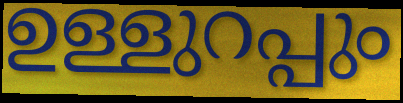
ഉള്ളുറപ്പും